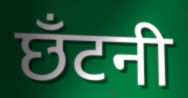
छँटनी